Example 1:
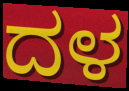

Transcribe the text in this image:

ದಳ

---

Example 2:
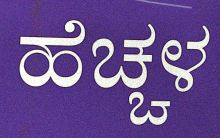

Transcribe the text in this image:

ಹೆಚ್ಚಳ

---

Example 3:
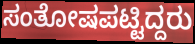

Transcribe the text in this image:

ಸಂತೋಷಪಟ್ಟಿದ್ದರು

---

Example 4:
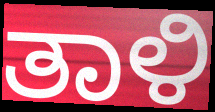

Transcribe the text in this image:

ತಾಳಿ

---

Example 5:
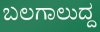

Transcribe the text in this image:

ಬಲಗಾಲುದ್ದ